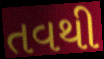
તવથી